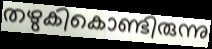
തഴുകികൊണ്ടിരുന്നു